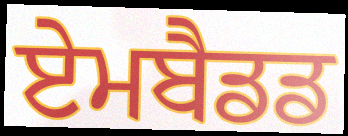
ਏਮਬੈਡਡ